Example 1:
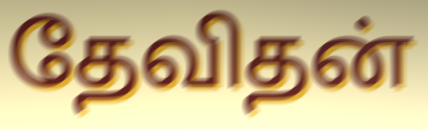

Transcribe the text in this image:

தேவிதன்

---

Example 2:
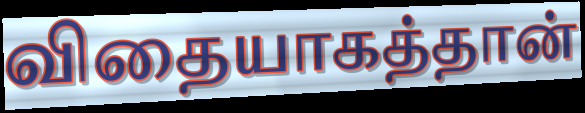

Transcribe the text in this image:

விதையாகத்தான்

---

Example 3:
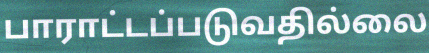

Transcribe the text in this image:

பாராட்டப்படுவதில்லை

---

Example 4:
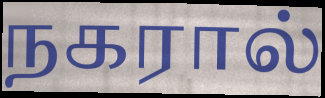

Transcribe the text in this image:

நகரால்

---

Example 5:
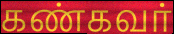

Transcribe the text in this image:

கண்கவர்